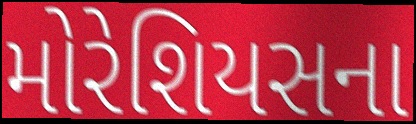
મોરેશિયસના